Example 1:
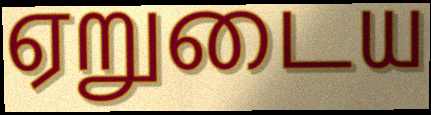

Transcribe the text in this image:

ஏறுடைய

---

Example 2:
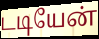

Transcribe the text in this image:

டடியேன்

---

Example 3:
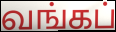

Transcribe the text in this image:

வங்கப்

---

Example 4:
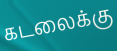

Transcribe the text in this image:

கடலைக்கு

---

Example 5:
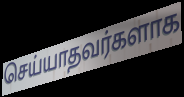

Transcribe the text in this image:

செய்யாதவர்களாக